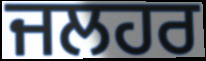
ਜਲਹਰ